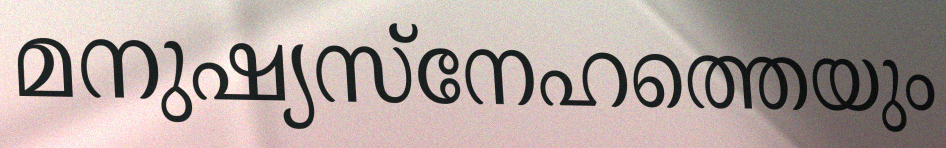
മനുഷ്യസ്നേഹത്തെയും